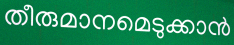
തീരുമാനമെടുക്കാൻ